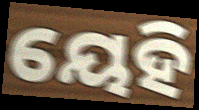
ୟେହି